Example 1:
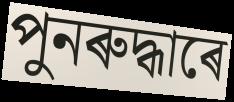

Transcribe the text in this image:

পুনৰুদ্ধাৰে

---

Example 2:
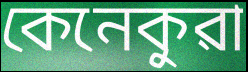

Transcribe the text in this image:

কেনেকুৱা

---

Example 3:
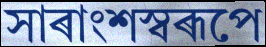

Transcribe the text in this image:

সাৰাংশস্বৰূপে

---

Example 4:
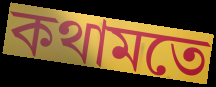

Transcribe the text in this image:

কথামতে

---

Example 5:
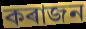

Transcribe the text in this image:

কৰাজন